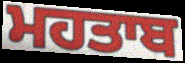
ਮਹਤਾਬ